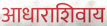
आधाराशिवाय